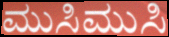
ಮುಸಿಮುಸಿ